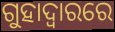
ଗୁହାଦ୍ଵାରରେ